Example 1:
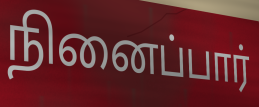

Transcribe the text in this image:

நினைப்பார்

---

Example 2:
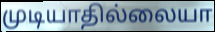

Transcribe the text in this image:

முடியாதில்லையா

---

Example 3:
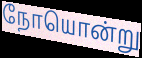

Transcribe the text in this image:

நோயொன்று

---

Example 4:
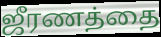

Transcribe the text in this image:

ஜீரணத்தை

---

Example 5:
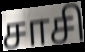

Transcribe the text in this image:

சாசி